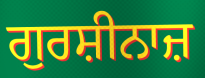
ਗੁਰਸ਼ੀਨਾਜ਼